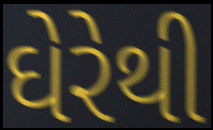
ઘેરેથી